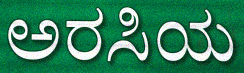
ಅರಸಿಯ